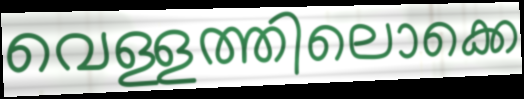
വെള്ളത്തിലൊക്കെ